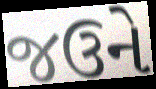
જઉને